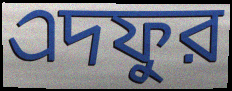
এদফুর